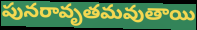
పునరావృతమవుతాయి